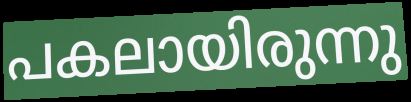
പകലായിരുന്നു